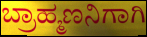
ಬ್ರಾಹ್ಮಣನಿಗಾಗಿ